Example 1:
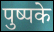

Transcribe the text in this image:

पुष्पके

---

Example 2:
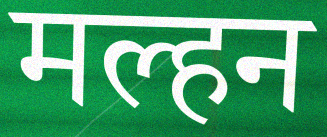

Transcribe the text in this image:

मल्हन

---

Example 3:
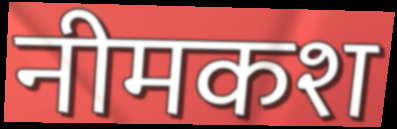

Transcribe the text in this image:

नीमकश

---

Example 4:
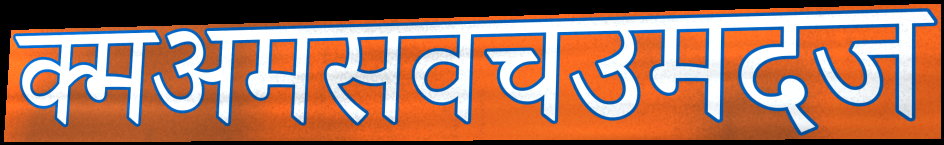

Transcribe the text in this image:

क्मअमसवचउमदज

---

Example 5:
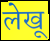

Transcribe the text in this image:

लेखू